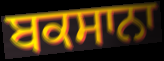
ਬਕਸਾਨਾ